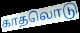
காதலொடு